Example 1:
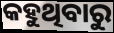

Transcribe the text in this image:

କହୁଥିବାରୁ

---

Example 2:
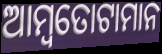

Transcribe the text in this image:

ଆମ୍ବତୋଟାମାନ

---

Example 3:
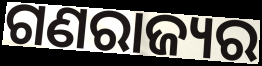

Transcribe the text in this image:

ଗଣରାଜ୍ୟର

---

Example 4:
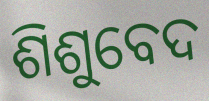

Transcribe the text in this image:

ଶିଶୁବେଦ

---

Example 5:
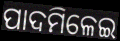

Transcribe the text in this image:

ପାଦମିଳେଇ